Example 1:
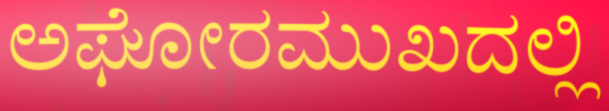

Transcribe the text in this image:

ಅಘೋರಮುಖದಲ್ಲಿ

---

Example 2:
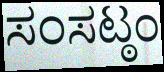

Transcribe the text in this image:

ಸಂಸಟ್ಠಂ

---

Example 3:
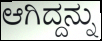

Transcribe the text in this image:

ಆಗಿದ್ದನ್ನು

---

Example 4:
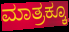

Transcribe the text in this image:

ಮಾತ್ರಕ್ಕೂ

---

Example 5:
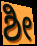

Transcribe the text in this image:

ಶೀ